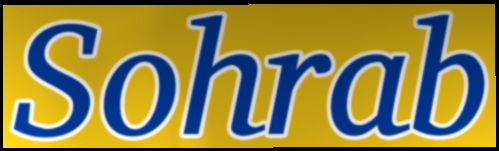
Sohrab